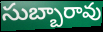
సుబ్బారావు